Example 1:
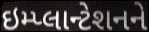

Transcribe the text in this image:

ઇમ્પ્લાન્ટેશનને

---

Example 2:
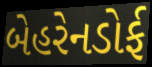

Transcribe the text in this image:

બેહરેનડોર્ફ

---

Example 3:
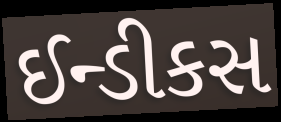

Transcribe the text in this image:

ઈન્ડીકસ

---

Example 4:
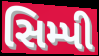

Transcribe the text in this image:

સિમ્પી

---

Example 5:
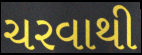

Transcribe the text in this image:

ચરવાથી